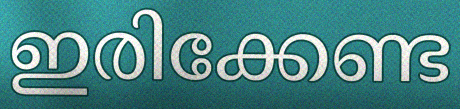
ഇരിക്കേണ്ട